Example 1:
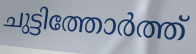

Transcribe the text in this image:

ചുട്ടിത്തോർത്ത്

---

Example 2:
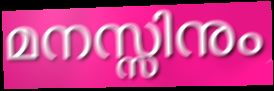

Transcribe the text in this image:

മനസ്സിനും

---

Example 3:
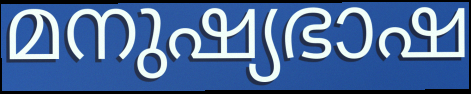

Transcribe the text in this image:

മനുഷ്യഭാഷ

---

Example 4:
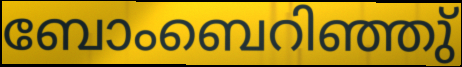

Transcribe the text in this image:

ബോംബെറിഞ്ഞു്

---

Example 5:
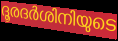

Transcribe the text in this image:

ദൂരദർശിനിയുടെ